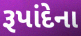
રૂપાંદેના